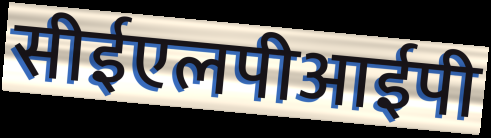
सीईएलपीआईपी